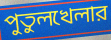
পুতুলখেলার